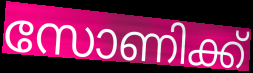
സോണിക്ക്